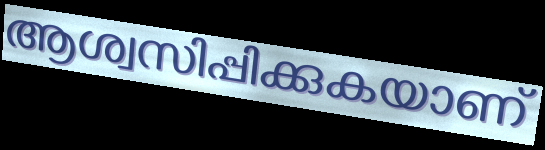
ആശ്വസിപ്പിക്കുകയാണ്